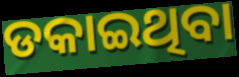
ଡକାଇଥିବା